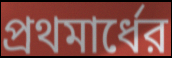
প্রথমার্ধের